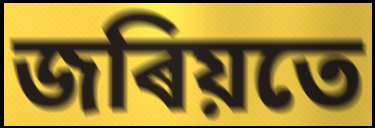
জৰিয়তে